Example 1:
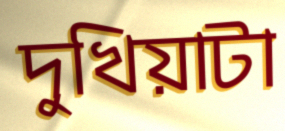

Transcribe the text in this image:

দুখিয়াটা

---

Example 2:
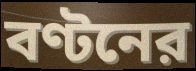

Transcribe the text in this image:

বণ্টনের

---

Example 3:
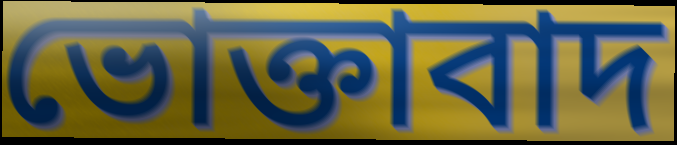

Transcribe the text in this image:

ভোক্তাবাদ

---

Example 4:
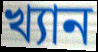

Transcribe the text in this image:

খ্যান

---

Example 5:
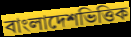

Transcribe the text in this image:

বাংলাদেশভিত্তিক